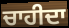
ਚਾਹੀਦਾ